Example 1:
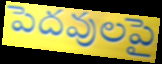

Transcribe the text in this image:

పెదవులపై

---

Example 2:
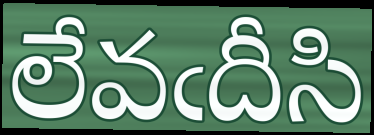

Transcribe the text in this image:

లేవఁదీసి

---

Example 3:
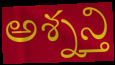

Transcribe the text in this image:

అశ్నన్తి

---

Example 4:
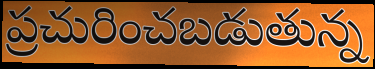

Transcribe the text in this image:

ప్రచురించబడుతున్న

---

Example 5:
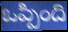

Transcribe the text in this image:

ఒప్పింది